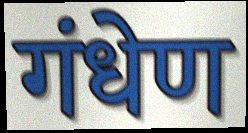
गंधेण